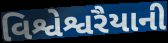
વિશ્વેશ્વરૈયાની